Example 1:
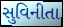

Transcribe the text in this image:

સુવિનીતા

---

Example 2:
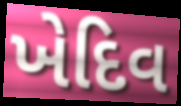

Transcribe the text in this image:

ખેદિવ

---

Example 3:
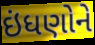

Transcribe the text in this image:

ઇંધણોને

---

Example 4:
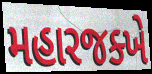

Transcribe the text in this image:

મહારજક્ખે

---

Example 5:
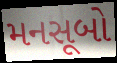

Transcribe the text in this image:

મનસૂબો